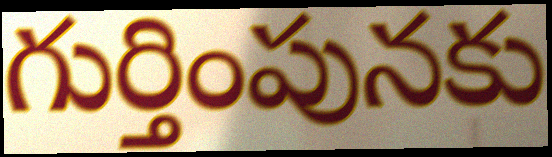
గుర్తింపునకు